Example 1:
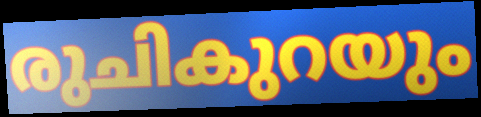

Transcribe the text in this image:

രുചികുറയും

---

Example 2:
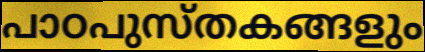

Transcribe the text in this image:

പാഠപുസ്തകങ്ങളും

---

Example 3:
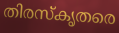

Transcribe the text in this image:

തിരസ്കൃതരെ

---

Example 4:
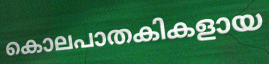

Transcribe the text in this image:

കൊലപാതകികളായ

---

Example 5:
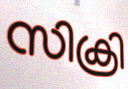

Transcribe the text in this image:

സിക്രി